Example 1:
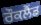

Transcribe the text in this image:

ਰੌਕਲੈਂਡ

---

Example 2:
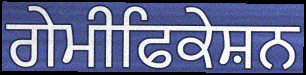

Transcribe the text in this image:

ਗੇਮੀਫਿਕੇਸ਼ਨ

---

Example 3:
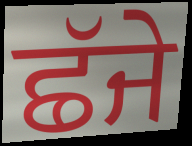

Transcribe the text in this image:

ਛੱਜੇ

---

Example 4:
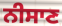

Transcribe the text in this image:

ਨੀਸਾਣ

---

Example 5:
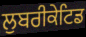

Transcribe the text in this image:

ਲੁਬਰੀਕੇਟਿਡ